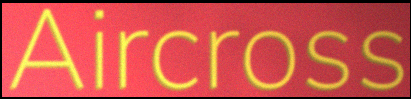
Aircross